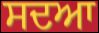
ਸਦਆ